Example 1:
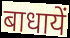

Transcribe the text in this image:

बाधायें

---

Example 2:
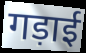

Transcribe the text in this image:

गड़ाई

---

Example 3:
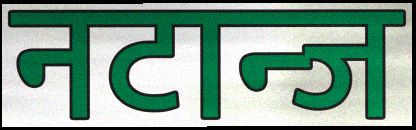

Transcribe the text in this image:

नटान्ज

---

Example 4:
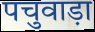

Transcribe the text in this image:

पचुवाड़ा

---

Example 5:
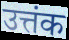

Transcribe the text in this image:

उत्तंक